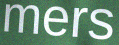
mers